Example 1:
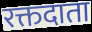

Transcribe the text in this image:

रक्तदाता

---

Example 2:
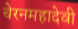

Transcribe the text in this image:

चेरनमहादेवी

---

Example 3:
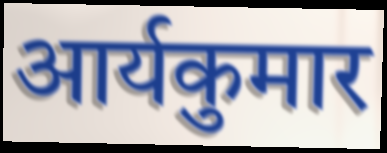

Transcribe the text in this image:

आर्यकुमार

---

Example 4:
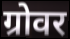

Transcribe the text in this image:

ग्रोवर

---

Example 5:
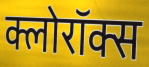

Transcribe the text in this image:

क्लोरॉक्स